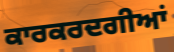
ਕਾਰਕਰਦਗੀਆਂ